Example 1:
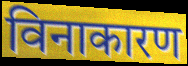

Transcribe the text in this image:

विनाकारण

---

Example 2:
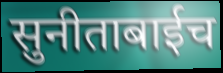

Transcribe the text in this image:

सुनीताबाईच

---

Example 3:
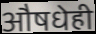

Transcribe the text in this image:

औषधेही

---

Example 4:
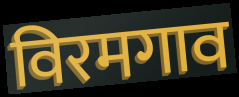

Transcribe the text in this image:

विरमगाव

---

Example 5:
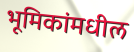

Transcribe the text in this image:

भूमिकांमधील